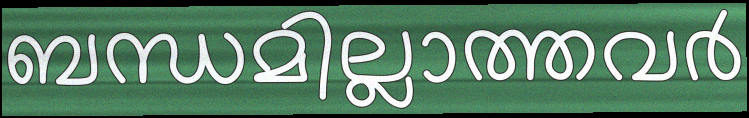
ബന്ധമില്ലാത്തവർ